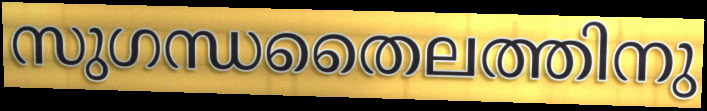
സുഗന്ധതൈലത്തിനു